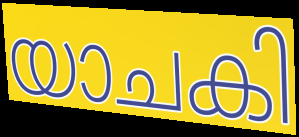
യാചകി